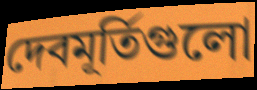
দেবমূর্তিগুলো